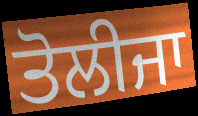
ਤੋਲੀਜਾ